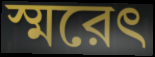
স্মরেৎ